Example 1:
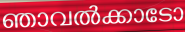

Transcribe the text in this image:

ഞാവൽക്കാടോ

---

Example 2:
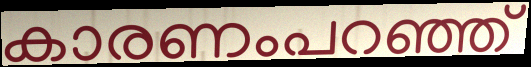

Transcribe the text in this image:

കാരണംപറഞ്ഞ്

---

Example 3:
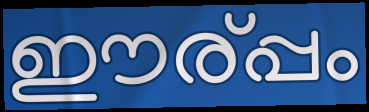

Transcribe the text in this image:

ഈര്പ്പം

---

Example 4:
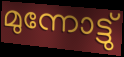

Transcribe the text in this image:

മുന്നോട്ടു്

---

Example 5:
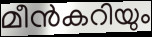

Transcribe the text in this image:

മീൻകറിയും